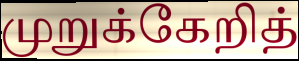
முறுக்கேறித்